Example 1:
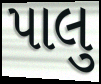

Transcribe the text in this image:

પાલુ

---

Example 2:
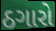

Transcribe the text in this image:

ઠગારો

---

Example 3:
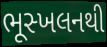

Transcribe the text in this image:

ભૂસ્ખલનથી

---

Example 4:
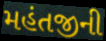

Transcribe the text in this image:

મહંતજીની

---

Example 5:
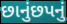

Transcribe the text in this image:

છાનુંછપનું